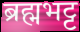
ब्रह्मभट्ट